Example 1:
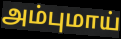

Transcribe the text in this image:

அம்புமாய்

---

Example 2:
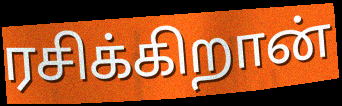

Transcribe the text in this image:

ரசிக்கிறான்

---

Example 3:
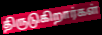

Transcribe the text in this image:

திருடுகிறார்கள்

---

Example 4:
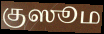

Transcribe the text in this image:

குஸூம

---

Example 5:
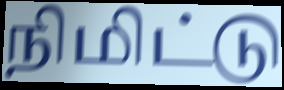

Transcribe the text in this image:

நிமிட்டு